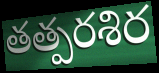
తత్పరశిర